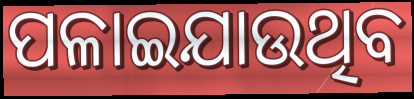
ପଳାଇଯାଉଥିବ